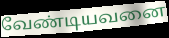
வேண்டியவனை